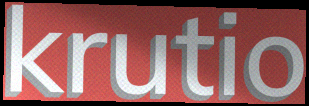
krutio